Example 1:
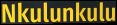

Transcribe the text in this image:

Nkulunkulu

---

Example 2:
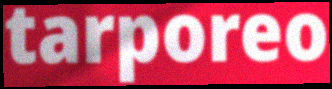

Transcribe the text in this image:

tarporeo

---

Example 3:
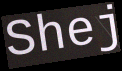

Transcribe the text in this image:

Shej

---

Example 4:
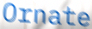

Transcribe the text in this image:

Ornate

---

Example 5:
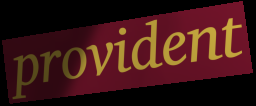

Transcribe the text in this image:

provident